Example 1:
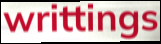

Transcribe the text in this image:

writtings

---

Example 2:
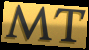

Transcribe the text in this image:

MT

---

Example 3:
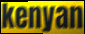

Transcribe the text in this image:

kenyan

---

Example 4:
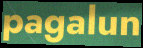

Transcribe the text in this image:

pagalun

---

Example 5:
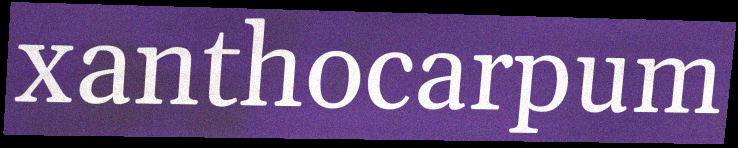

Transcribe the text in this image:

xanthocarpum